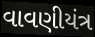
વાવણીયંત્ર